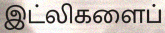
இட்லிகளைப்